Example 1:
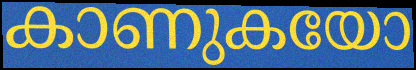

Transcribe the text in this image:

കാണുകയോ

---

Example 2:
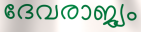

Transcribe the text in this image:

ദേവരാജ്യം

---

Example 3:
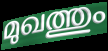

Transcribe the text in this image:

മുഖത്തും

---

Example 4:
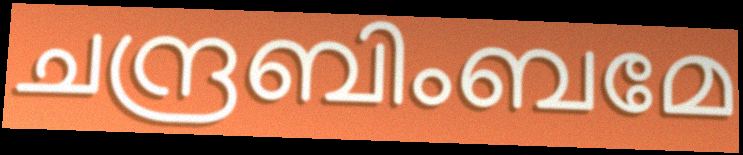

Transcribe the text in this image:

ചന്ദ്രബിംബമേ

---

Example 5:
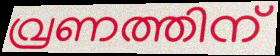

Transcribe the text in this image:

വ്രണത്തിന്